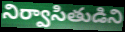
నిర్వాసితుడిని